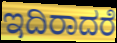
ಇದಿರಾದರೆ